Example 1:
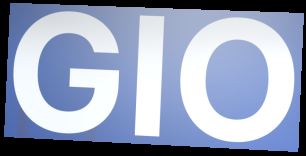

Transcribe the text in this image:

GIO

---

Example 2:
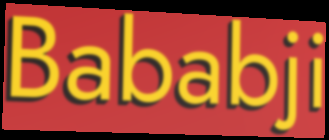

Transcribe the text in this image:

Bababji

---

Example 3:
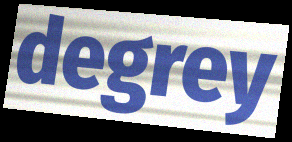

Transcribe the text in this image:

degrey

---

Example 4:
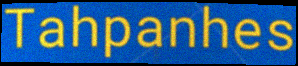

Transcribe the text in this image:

Tahpanhes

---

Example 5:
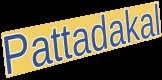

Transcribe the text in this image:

Pattadakal